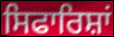
ਸਿਫਾਰਿਸ਼ਾਂ